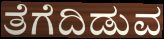
ತೆಗೆದಿಡುವ